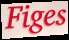
Figes